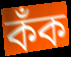
কঁক